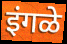
इंगळे